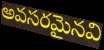
అవసరమైనవి